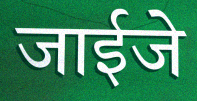
जाईजे